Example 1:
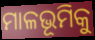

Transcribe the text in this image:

ମାଳଭୂମିକୁ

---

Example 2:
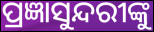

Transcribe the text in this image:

ପ୍ରଜ୍ଞାସୁନ୍ଦରୀଙ୍କୁ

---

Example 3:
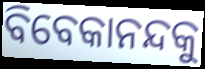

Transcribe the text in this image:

ବିବେକାନନ୍ଦକୁ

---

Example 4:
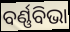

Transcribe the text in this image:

ବର୍ଣ୍ଣବିଭା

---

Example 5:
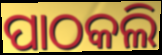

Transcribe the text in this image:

ପାଠକଲି